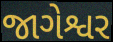
જાગેશ્વર